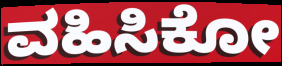
ವಹಿಸಿಕೋ